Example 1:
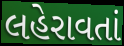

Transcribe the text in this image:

લહેરાવતાં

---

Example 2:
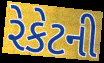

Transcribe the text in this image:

રેકેટની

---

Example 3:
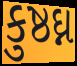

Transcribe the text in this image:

કુષ્ઠઘ્ન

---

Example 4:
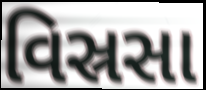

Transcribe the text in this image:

વિસ્રસા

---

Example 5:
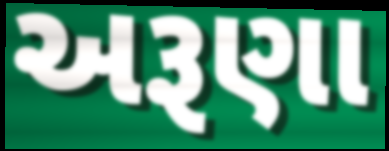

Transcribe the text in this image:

અરૂણા